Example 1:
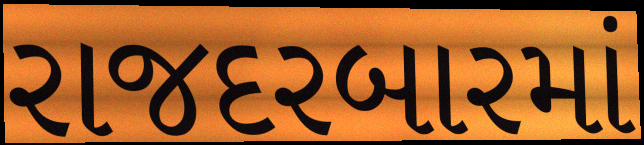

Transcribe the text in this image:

રાજદરબારમાં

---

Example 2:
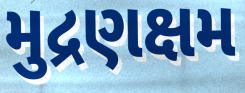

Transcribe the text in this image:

મુદ્રણક્ષમ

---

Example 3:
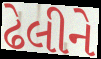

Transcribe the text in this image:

ઢેલીને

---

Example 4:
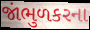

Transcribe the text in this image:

જાંભુળકરના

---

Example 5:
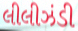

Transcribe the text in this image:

લીલીઝંડી